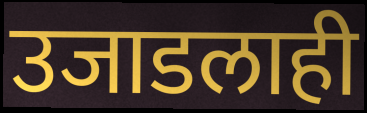
उजाडलाही